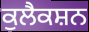
ਕੁਲੈਕਸ਼ਨ